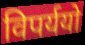
विपर्ययो